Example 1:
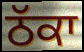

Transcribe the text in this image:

ਠੱਕਾ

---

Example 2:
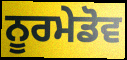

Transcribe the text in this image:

ਨੂਰਮੇਡੋਵ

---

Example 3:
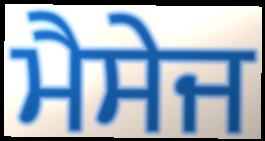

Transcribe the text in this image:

ਮੈਸੇਜ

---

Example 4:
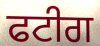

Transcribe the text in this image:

ਫਟੀਗ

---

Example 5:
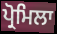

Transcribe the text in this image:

ਪ੍ਰੋਮਿਲਾ